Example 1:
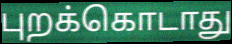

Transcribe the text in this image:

புறக்கொடாது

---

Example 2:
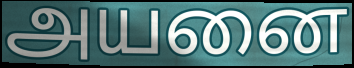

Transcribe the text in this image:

அயனை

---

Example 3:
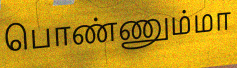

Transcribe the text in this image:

பொண்ணும்மா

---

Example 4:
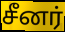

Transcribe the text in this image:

சீனர்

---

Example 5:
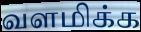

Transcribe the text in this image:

வளமிக்க